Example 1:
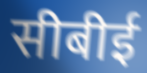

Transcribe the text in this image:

सीबीई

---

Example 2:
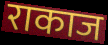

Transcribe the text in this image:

राकाज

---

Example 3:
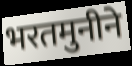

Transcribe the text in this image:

भरतमुनीने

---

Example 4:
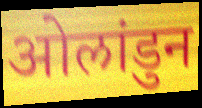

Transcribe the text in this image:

ओलांडुन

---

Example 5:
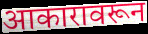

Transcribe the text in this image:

आकारावरून